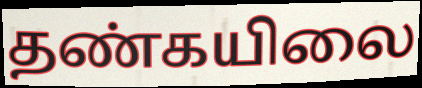
தண்கயிலை